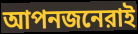
আপনজনেরাই